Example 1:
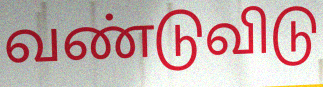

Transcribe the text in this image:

வண்டுவிடு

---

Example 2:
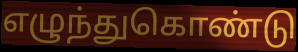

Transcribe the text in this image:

எழுந்துகொண்டு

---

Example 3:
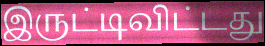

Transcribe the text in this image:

இருட்டிவிட்டது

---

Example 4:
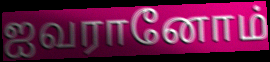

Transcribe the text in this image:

ஐவரானோம்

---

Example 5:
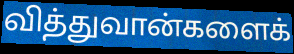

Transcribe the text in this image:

வித்துவான்களைக்